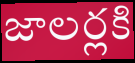
జాలర్లకి